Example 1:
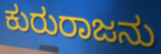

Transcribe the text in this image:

ಕುರುರಾಜನು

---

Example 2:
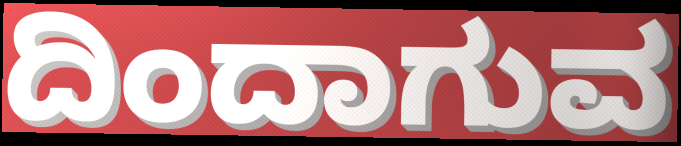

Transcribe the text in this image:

ದಿಂದಾಗುವ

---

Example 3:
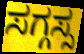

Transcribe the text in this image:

ಸಗ್ಗಸ್ಸ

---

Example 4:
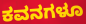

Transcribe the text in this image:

ಕವನಗಳೂ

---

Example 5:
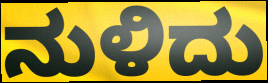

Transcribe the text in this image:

ನುಳಿದು